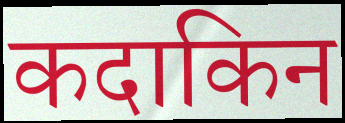
कदाकिन